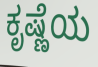
ಕೃಷ್ಣೆಯ